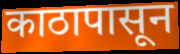
काठापासून